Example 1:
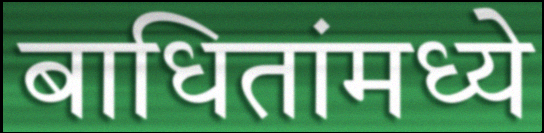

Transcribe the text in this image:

बाधितांमध्ये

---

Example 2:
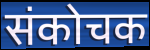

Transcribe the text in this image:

संकोचक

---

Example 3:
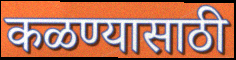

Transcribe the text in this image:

कळण्यासाठी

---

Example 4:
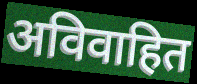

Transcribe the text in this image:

अविवाहित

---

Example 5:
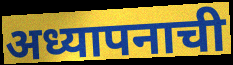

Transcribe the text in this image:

अध्यापनाची